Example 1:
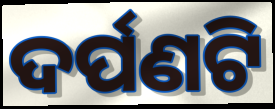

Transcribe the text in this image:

ଦର୍ପଣଟି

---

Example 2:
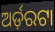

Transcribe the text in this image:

ଅର୍ଡ଼ରଟା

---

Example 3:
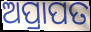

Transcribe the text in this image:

ଅପ୍ରାପତ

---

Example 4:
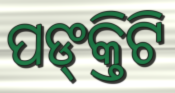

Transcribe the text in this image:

ପଙ୍‌କ୍ତିଟି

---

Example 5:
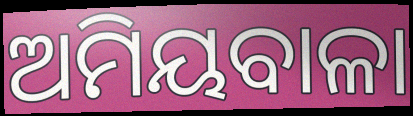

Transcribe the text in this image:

ଅମିୟବାଳା